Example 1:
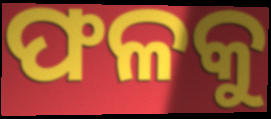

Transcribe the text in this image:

ଫଳକୁ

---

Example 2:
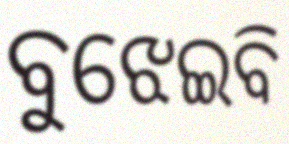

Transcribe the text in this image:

ବୁଝେଇବି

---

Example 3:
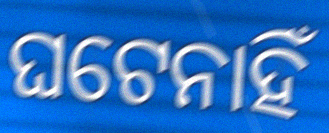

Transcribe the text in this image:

ଘଟେନାହିଁ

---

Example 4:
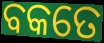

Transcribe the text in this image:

ବକତେ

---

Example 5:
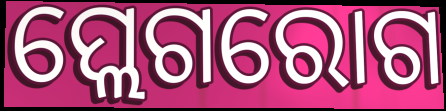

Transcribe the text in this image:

ପ୍ଲେଗରୋଗ